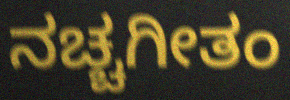
ನಚ್ಚಗೀತಂ